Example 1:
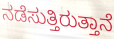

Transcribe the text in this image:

ನಡೆಸುತ್ತಿರುತ್ತಾನೆ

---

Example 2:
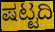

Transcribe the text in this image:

ಷಟ್ಟದಿ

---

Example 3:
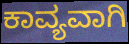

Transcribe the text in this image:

ಕಾವ್ಯವಾಗಿ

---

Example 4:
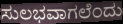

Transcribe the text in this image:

ಸುಲಭವಾಗಲೆಂದು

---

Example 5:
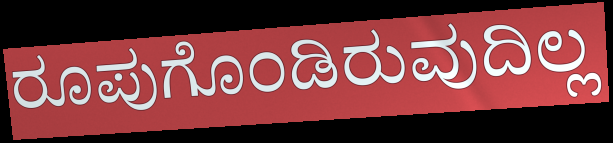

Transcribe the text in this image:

ರೂಪುಗೊಂಡಿರುವುದಿಲ್ಲ